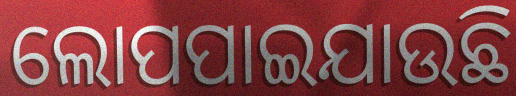
ଲୋପପାଇଯାଉଛି